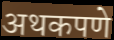
अथकपणे